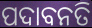
ପଦାବନତି